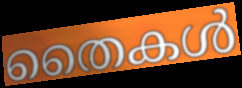
തൈകൾ